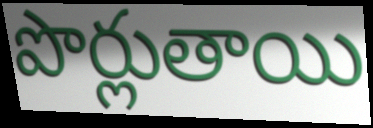
పొర్లుతాయి